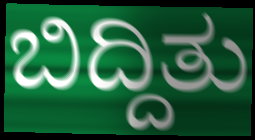
ಬಿದ್ದಿತು